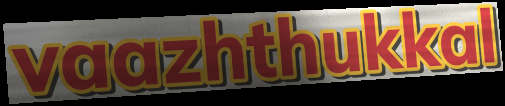
vaazhthukkal